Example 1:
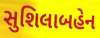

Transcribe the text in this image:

સુશિલાબહેન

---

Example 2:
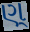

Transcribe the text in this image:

ણ્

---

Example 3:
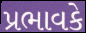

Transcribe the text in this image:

પ્રભાવકે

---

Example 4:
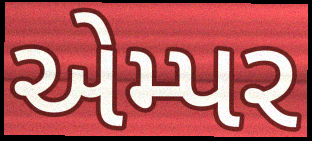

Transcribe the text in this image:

એમ્પર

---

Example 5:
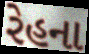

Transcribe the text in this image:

રેહના